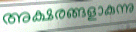
അക്ഷരങ്ങളാകുന്നു